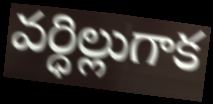
వర్ధిల్లుగాక